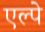
एल्पे